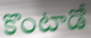
కొంటాడో